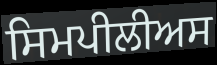
ਸਿਮਪੀਲੀਅਸ